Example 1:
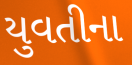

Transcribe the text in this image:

યુવતીના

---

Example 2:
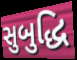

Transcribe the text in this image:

સુબુદ્ધિ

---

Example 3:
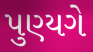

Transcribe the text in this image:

પુણ્યગે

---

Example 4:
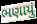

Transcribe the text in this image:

ભણાયું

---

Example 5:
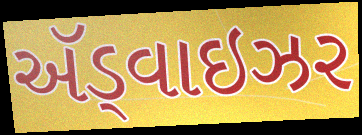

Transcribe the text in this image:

ઍડ્વાઇઝર